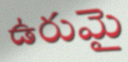
ఉరుమై